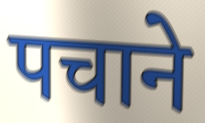
पचाने